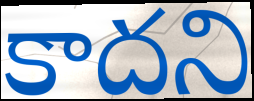
కాదని